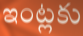
ఇంట్లకు